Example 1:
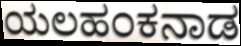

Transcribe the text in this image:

ಯಲಹಂಕನಾಡ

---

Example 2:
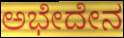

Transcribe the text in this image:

ಅಭೇದೇನ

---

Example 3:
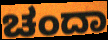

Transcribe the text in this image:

ಚಂದಾ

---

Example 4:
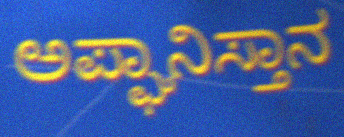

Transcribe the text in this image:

ಅಪ್ಘಾನಿಸ್ತಾನ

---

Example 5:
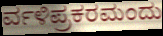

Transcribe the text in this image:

ರ್ವಳಿಪ್ರಕರಮಂದು